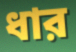
ধার